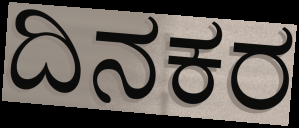
ದಿನಕರ